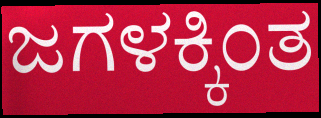
ಜಗಳಕ್ಕಿಂತ